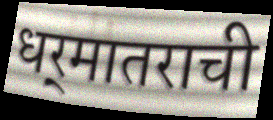
धर्मातराची